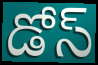
డోస్